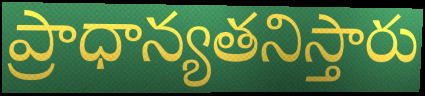
ప్రాధాన్యతనిస్తారు